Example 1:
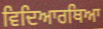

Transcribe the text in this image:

ਵਿਦਿਆਰਥਿਆ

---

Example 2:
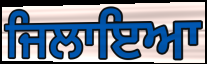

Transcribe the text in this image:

ਜਿਲਾਇਆ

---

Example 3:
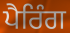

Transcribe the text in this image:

ਪੈਰਿੰਗ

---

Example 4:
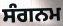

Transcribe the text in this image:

ਸੰਗਨਮ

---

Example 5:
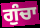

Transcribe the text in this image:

ਗੁੰਚਾ